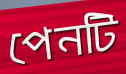
পেনটি